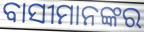
ବାସୀମାନଙ୍କର